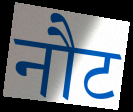
नौट